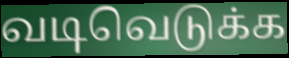
வடிவெடுக்க